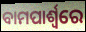
ବାମପାର୍ଶ୍ଵରେ